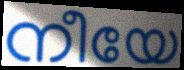
നീയേ